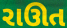
રાઊત